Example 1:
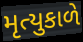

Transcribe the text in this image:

મૃત્યુકાળે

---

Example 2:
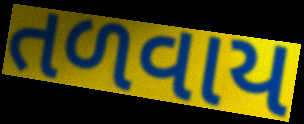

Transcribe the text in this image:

તળવાય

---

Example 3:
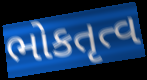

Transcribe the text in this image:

ભોકતૃત્વ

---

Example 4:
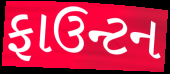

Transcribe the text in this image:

ફાઉન્ટન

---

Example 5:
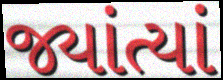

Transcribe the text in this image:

જ્યાંત્યાં